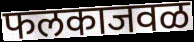
फलकाजवळ